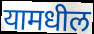
यामधील